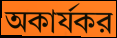
অকার্যকর